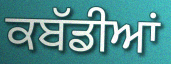
ਕਬੱਡੀਆਂ